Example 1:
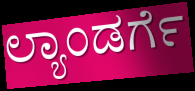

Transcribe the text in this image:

ಲ್ಯಾಂಡರ್ಗೆ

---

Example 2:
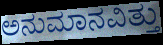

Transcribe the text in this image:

ಅನುಮಾನವಿತ್ತು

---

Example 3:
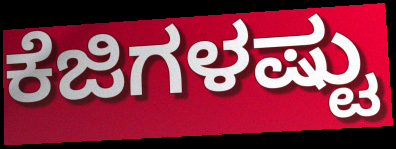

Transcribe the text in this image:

ಕೆಜಿಗಳಷ್ಟು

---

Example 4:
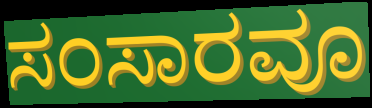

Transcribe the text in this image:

ಸಂಸಾರವೂ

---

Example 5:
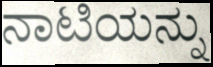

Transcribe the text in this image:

ನಾಟಿಯನ್ನು